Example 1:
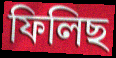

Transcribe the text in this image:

ফিলিছ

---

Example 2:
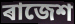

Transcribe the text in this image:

ৰাজেশ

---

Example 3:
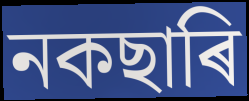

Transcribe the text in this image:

নকছাৰি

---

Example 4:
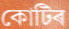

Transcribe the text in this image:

কোটিৰ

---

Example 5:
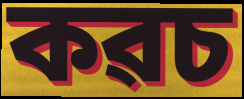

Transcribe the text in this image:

কৱচ